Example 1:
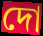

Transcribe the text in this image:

দো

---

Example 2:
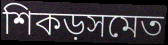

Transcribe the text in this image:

শিকড়সমেত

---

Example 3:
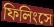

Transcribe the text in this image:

ফিলিংসে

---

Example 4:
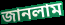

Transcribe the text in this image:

জানলাম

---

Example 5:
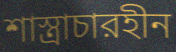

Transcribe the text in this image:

শাস্ত্রাচারহীন